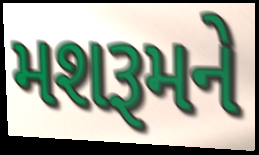
મશરૂમને